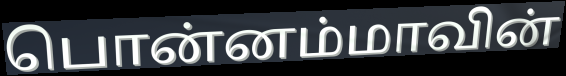
பொன்னம்மாவின்